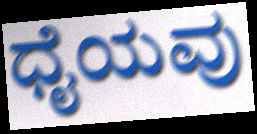
ಧೈಯವು